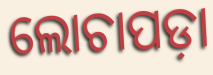
ଲୋଚାପଡ଼ା